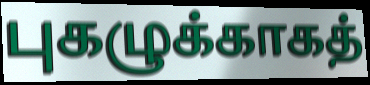
புகழுக்காகத்